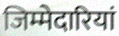
जिम्मेदारियां